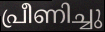
പ്രീണിച്ചു